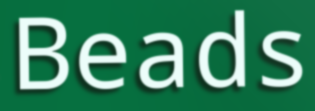
Beads